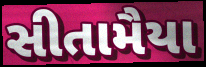
સીતામૈયા